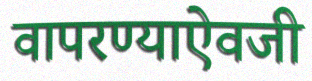
वापरण्याऐवजी